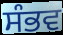
ਸੰਭਵ